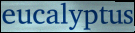
eucalyptus